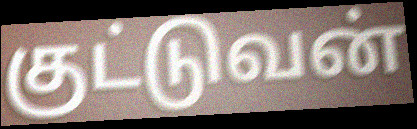
குட்டுவன்